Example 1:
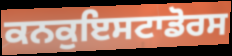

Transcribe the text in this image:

ਕਨਕੁਇਸਟਾਡੋਰਸ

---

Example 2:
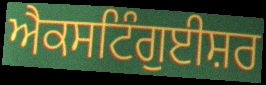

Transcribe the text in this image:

ਐਕਸਟਿੰਗੁਈਸ਼ਰ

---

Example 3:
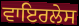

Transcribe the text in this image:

ਵਾਇਰਲੇਸ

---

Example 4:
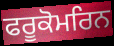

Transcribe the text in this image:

ਫਰੂਕੋਮਰਿਨ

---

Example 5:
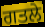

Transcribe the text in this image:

ਗਤਲੇ